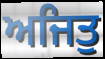
ਅਜਿਤੁ